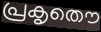
പ്രകൃതൌ